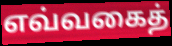
எவ்வகைத்